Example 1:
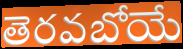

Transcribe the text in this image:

తెరవబోయే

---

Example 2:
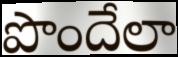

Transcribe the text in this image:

పొందేలా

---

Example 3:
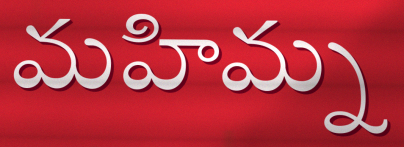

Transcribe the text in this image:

మహిమ్న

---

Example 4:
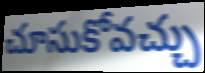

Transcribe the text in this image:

చూసుకోవచ్చు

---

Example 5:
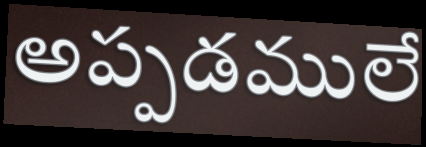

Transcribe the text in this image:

అప్పడములే